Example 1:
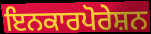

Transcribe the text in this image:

ਇਨਕਾਰਪੋਰੇਸ਼ਨ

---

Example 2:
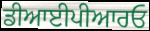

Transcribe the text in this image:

ਡੀਆਈਪੀਆਰਓ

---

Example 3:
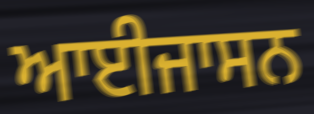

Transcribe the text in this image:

ਆਈਜਾਸਨ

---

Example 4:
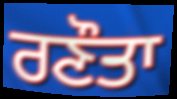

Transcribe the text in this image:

ਰਣੌਤਾ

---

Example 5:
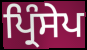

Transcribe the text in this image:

ਪ੍ਰਿੰਸੇਪ